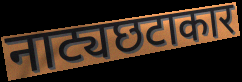
नाट्यछटाकार